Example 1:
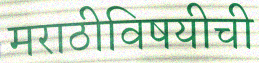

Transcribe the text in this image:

मराठीविषयीची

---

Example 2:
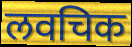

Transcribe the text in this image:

लवचिक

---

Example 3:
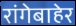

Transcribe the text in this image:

रांगेबाहेर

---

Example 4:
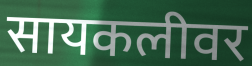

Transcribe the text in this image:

सायकलीवर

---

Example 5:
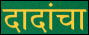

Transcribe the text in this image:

दादांचा